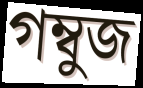
গম্বুজ